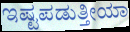
ಇಷ್ಟಪಡುತ್ತೀಯಾ